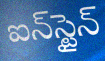
ఐన్‌స్టైన్